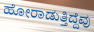
ಹೋರಾಡುತ್ತಿದ್ದೆವು